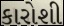
કારોશી